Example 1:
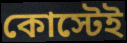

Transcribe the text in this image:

কোস্টেই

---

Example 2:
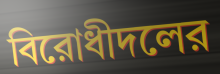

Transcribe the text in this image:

বিরোধীদলের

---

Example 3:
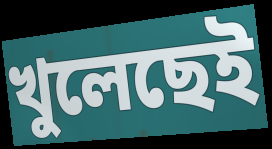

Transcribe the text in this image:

খুলেছেই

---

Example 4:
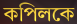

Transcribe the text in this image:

কপিলকে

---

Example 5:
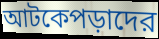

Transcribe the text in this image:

আটকেপড়াদের